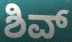
ಶಿವ್